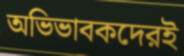
অভিভাবকদেরই